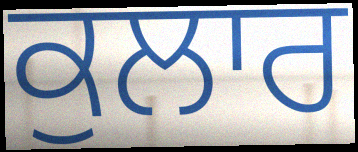
ਕੁਲਾਰ